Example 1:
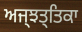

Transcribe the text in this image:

ਅਜ੍ਝਤ੍ਤਿਕਾ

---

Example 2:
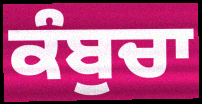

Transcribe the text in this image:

ਕੰਬੁਚਾ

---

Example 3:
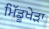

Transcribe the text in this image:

ਮਿੱਡੂਖੇੜਾ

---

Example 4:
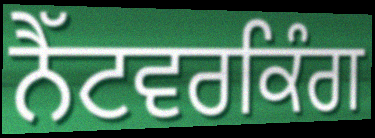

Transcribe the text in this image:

ਨੈੱਟਵਰਕਿੰਗ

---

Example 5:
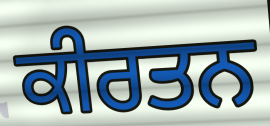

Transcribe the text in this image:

ਕੀਰਤਨ